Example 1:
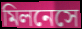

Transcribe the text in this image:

মিলনেসে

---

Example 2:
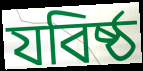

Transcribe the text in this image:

যবিষ্ঠ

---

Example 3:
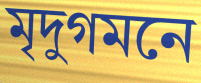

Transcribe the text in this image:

মৃদুগমনে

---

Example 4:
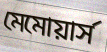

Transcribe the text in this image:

মেমোয়ার্স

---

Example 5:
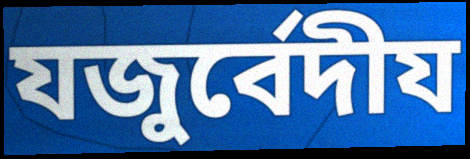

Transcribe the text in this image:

যজুর্বেদীয